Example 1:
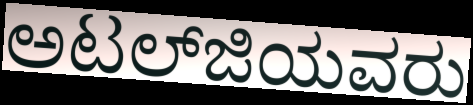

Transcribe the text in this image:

ಅಟಲ್‍ಜಿಯವರು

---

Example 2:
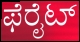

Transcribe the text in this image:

ಫೆರೈಟ್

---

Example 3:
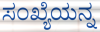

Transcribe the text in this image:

ಸಂಖ್ಯೆಯನ್ನ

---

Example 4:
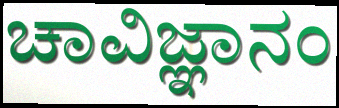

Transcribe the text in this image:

ಚಾವಿಜ್ಞಾನಂ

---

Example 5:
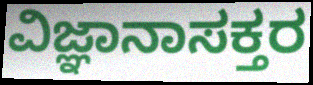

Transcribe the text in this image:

ವಿಜ್ಞಾನಾಸಕ್ತರ